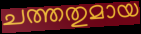
ചത്തതുമായ